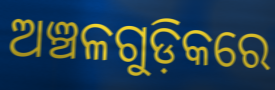
ଅଞ୍ଚଳଗୁଡ଼ିକରେ